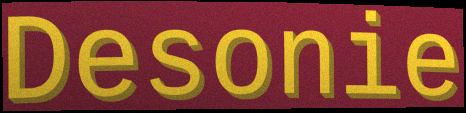
Desonie